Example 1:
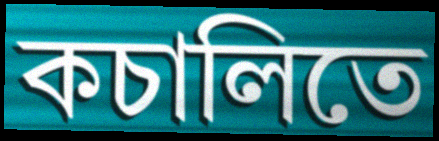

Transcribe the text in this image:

কচালিতে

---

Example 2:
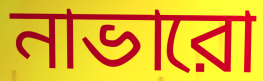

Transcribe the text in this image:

নাভারো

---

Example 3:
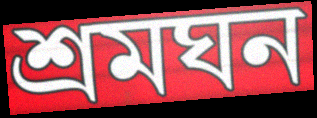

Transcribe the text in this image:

শ্রমঘন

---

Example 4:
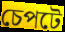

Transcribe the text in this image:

চেপটে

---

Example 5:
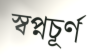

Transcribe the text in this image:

স্বপ্নচূর্ণ